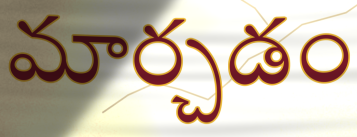
మార్చడం